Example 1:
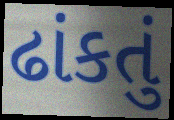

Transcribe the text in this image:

ઢાંકતું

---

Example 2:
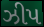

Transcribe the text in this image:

ઝીપ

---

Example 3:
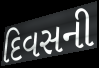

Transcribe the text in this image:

દિવસની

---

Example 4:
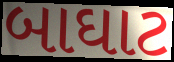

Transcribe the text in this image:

બાઘાટ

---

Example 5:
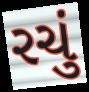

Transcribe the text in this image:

રચું